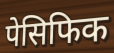
पेसिफिक